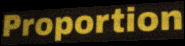
Proportion